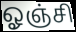
ஓஞ்சி